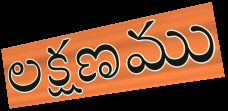
లక్షణము